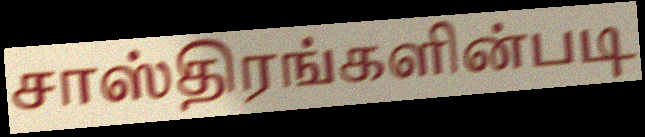
சாஸ்திரங்களின்படி